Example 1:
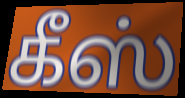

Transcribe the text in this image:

கீஸ்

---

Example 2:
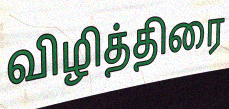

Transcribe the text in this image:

விழித்திரை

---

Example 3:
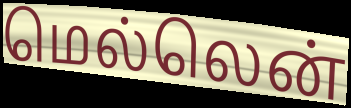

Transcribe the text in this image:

மெல்லென்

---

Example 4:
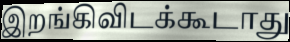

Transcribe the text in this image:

இறங்கிவிடக்கூடாது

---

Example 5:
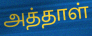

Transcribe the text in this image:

அத்தாள்